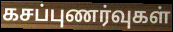
கசப்புணர்வுகள்